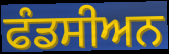
ਫੰਡਸੀਅਨ